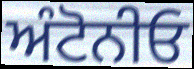
ਅੰਟੋਨੀਓ